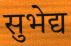
सुभेद्य